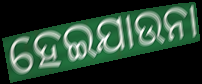
ହେଇଯାଉନା